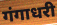
गंगाधरी